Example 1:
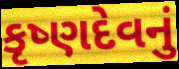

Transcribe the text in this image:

કૃષ્ણદેવનું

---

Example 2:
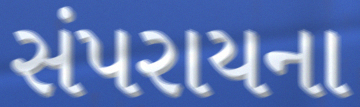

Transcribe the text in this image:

સંપરાયના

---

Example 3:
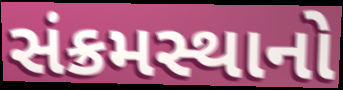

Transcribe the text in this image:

સંક્રમસ્થાનો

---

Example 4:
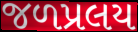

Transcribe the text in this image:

જળપ્રલય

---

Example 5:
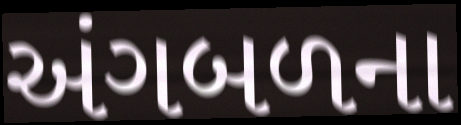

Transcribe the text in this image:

અંગબળના